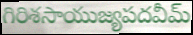
గిరిశసాయుజ్యపదవీమ్